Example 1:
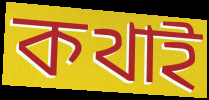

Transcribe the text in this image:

কথাই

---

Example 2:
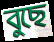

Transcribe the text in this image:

বুছে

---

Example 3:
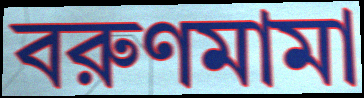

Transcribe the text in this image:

বরুণমামা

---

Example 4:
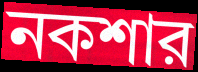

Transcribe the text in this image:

নকশার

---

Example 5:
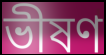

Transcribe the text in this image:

ভীষণ